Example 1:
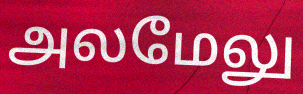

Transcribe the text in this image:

அலமேலு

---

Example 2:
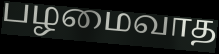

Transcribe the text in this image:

பழமைவாத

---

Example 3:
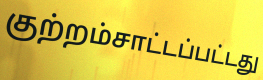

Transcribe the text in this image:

குற்றம்சாட்டப்பட்டது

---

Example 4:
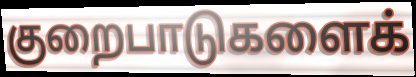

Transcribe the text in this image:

குறைபாடுகளைக்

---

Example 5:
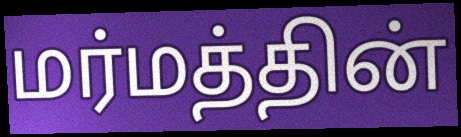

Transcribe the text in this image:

மர்மத்தின்